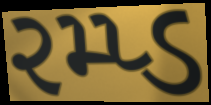
રમ્પ્ડ